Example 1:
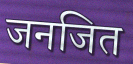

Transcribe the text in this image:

जनजित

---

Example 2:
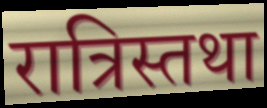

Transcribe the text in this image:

रात्रिस्तथा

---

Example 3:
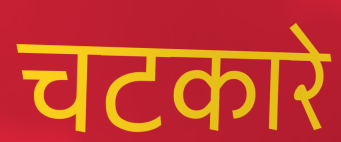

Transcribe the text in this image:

चटकारे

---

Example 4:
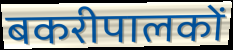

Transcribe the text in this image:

बकरीपालकों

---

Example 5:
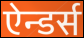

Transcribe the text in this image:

ऐन्डर्स